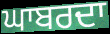
ਘਾਬਰਦਾ